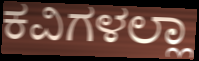
ಕವಿಗಳಲ್ಲಾ